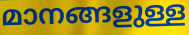
മാനങ്ങളുള്ള